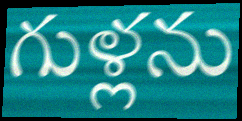
గుళ్లను